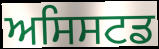
ਅਸਿਸਟਡ